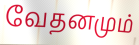
வேதனமும்